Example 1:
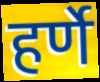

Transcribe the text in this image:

हर्णे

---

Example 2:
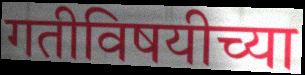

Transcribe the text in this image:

गतीविषयीच्या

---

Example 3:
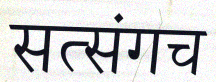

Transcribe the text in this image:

सत्संगच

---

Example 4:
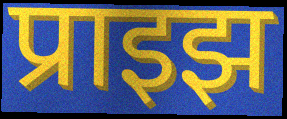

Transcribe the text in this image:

प्राइझ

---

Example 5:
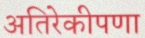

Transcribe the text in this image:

अतिरेकीपणा